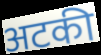
अटकी